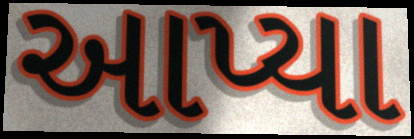
આપ્યા